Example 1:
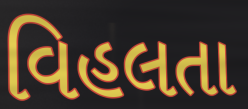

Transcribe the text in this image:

વિહલતા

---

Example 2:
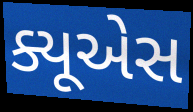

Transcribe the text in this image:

ક્યૂએસ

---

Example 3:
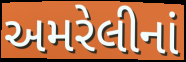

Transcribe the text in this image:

અમરેલીનાં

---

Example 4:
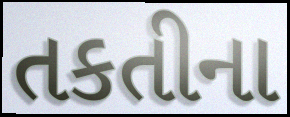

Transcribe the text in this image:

તકતીના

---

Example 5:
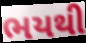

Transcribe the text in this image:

ભયથી